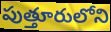
పుత్తూరులోని